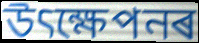
উৎক্ষেপনৰ